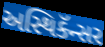
અસ્થિકૅન્સર